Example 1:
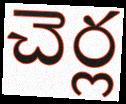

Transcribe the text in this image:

చెర్ల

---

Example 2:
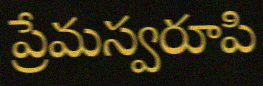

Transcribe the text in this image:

ప్రేమస్వరూపి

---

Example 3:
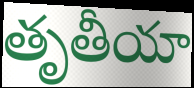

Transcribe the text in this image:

తృతీయా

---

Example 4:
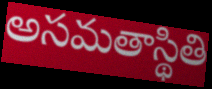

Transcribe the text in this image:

అసమతాస్థితి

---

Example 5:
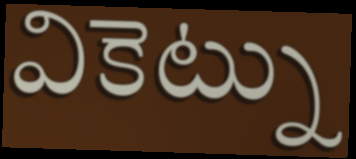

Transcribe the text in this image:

వికెట్ను